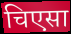
चिएसा